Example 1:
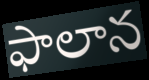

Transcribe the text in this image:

ఫాలాన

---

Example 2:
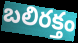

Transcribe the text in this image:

బలిరక్తం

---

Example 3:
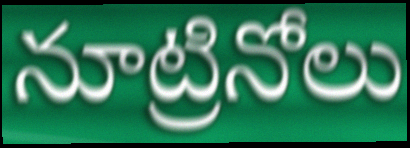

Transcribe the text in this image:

నూట్రినోలు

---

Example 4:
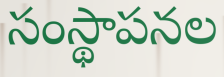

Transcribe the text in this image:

సంస్థాపనల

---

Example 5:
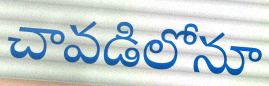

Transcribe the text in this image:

చావడిలోనూ